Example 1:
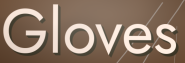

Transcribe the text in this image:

Gloves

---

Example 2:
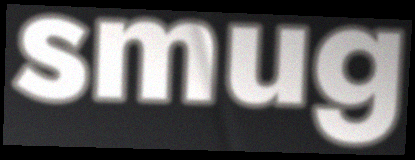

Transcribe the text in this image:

smug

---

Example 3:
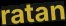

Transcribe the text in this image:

ratan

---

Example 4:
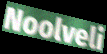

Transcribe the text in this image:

Noolveli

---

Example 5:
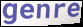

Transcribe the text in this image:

genre